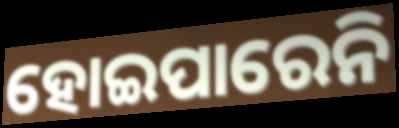
ହୋଇପାରେନି